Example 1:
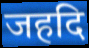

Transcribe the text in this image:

जहदि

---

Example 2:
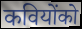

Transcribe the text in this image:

कवियोंको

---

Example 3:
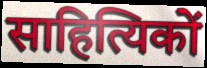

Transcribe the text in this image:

साहित्यिकों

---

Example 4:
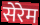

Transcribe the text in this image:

सेरेम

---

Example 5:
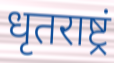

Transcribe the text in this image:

धृतराष्ट्रं